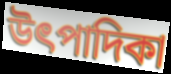
উৎপাদিকা